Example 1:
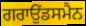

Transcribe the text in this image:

ਗਰਾਉਂਡਸਮੈਨ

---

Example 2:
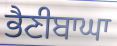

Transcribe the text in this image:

ਭੈਣੀਬਾਘਾ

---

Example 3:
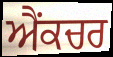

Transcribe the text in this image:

ਐਂਕਚਰ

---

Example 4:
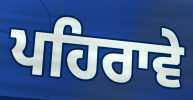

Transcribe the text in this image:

ਪਹਿਰਾਵੇ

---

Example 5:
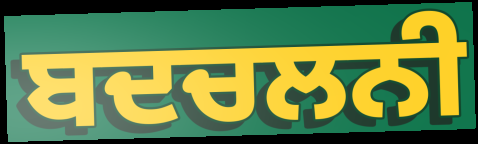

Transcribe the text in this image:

ਬਦਚਲਨੀ